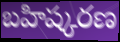
బహిష్కరణ